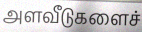
அளவீடுகளைச்